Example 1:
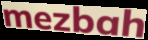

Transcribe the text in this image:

mezbah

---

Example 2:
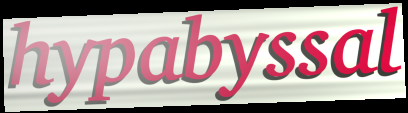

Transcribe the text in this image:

hypabyssal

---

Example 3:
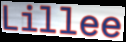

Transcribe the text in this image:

Lillee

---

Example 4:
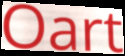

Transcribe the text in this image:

Oart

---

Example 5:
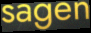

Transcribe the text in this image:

sagen